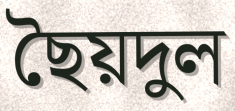
ছৈয়দুল